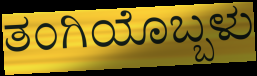
ತಂಗಿಯೊಬ್ಬಳು